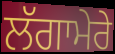
ਲੱਗਾਮੇਰੇ